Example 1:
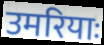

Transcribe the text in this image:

उमरियाः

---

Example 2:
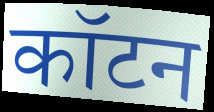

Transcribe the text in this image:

कॉटन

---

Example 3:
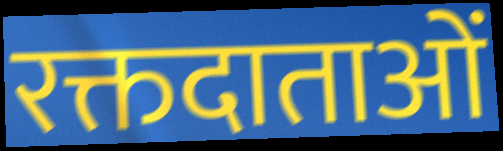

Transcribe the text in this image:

रक्तदाताओं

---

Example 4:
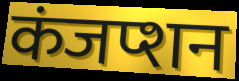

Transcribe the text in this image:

कंजप्शन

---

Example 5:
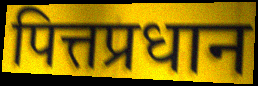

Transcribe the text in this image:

पित्तप्रधान